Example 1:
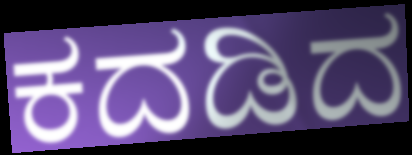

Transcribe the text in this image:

ಕದಡಿದ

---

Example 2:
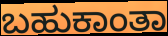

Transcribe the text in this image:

ಬಹುಕಾಂತಾ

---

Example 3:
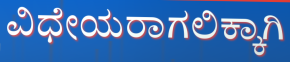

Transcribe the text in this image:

ವಿಧೇಯರಾಗಲಿಕ್ಕಾಗಿ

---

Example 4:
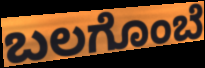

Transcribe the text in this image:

ಬಲಗೊಂಬೆ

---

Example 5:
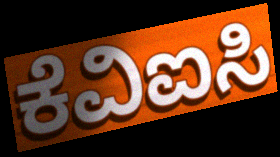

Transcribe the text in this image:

ಕೆವಿಐಸಿ